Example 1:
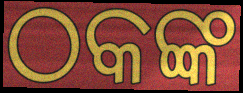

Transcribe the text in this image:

ଠକଙ୍କ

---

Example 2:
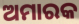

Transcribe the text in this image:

ଅମାରକ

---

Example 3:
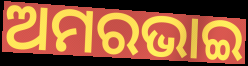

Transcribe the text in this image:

ଅମରଭାଇ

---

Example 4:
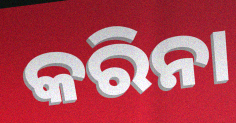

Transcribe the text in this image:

କରିନା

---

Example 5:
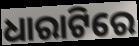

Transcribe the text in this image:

ଧାରାଟିରେ